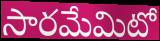
సారమేమిటో